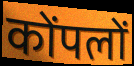
कोंपलों